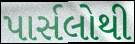
પાર્સલોથી